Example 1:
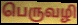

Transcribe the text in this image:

பெருவழி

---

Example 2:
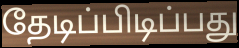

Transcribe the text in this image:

தேடிப்பிடிப்பது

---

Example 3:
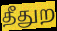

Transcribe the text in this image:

தீதுற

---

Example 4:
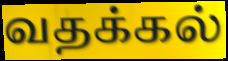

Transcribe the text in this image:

வதக்கல்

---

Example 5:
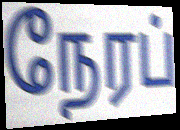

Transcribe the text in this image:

நேரப்